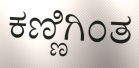
ಕಣ್ಣಿಗಿಂತ